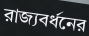
রাজ্যবর্ধনের